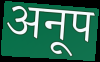
अनूप